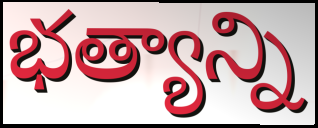
భత్యాన్ని